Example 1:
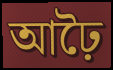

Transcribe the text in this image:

আঢ়ৈ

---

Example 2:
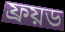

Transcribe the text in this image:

ফ্ৰয়ড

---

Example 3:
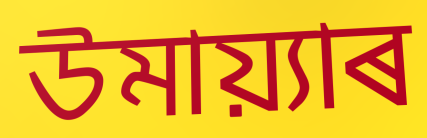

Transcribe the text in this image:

উমায়্যাৰ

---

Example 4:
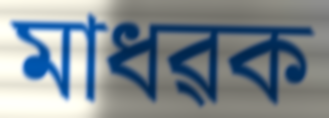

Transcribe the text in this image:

মাধৱক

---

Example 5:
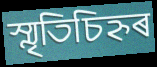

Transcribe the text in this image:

স্মৃতিচিহ্নৰ